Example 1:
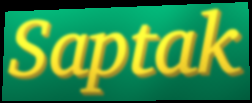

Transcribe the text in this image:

Saptak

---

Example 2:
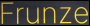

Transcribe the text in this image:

Frunze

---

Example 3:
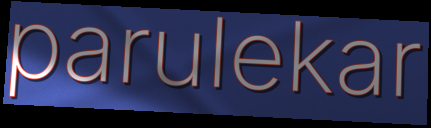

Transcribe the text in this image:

parulekar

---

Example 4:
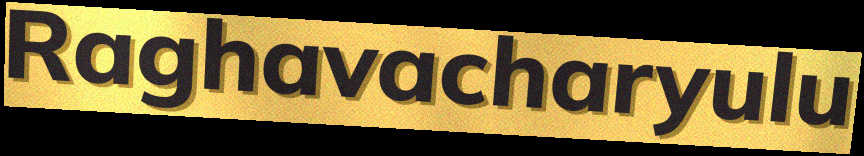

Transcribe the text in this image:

Raghavacharyulu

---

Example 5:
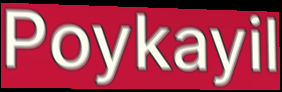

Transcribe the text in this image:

Poykayil